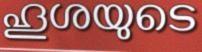
ഹൂശയുടെ